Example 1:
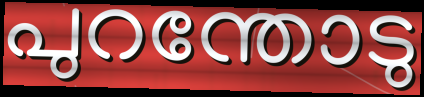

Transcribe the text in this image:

പുറന്തോടു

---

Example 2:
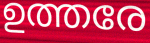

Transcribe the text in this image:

ഉത്തരേ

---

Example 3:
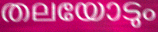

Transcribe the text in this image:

തലയോടും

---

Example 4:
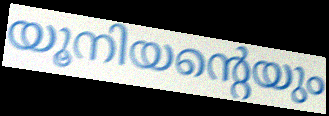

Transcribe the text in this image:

യൂനിയന്റെയും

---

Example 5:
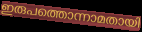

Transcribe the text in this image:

ഇരുപത്തൊന്നാമതായി